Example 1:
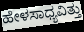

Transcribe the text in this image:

ಹೇಳಸಾಧ್ಯವಿತ್ತು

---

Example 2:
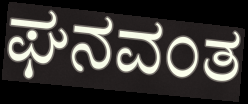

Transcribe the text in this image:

ಘನವಂತ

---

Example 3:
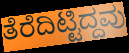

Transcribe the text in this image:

ತೆರೆದಿಟ್ಟಿದ್ದವು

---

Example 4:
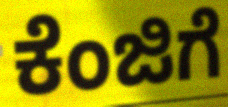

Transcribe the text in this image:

ಕೆಂಜಿಗೆ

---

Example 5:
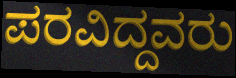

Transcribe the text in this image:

ಪರವಿದ್ದವರು